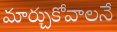
మార్చుకోవాలనే